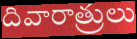
దివారాత్రులు